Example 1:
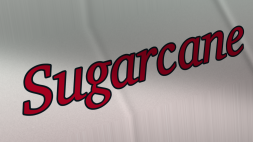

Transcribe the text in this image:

Sugarcane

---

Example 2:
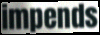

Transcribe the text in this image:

impends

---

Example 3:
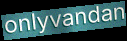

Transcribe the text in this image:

onlyvandan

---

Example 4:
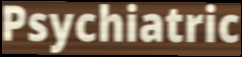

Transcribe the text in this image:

Psychiatric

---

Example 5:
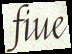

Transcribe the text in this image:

fiue